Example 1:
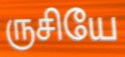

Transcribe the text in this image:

ருசியே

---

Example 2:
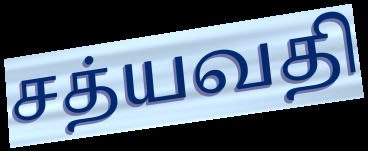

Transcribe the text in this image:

சத்யவதி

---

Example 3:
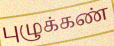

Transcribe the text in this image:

புழுக்கண்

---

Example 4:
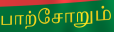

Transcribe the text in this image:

பாற்சோறும்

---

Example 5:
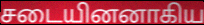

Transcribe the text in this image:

சடையினனாகிய